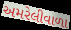
અમરેલીવાળા